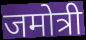
जमोत्री